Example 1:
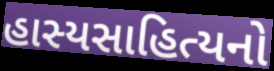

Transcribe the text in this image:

હાસ્યસાહિત્યનો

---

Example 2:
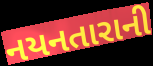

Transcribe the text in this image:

નયનતારાની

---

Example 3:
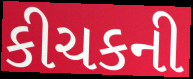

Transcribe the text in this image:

કીચકની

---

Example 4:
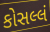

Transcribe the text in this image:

કોસલ્લં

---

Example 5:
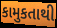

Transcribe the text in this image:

કામુકતાથી